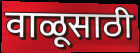
वाळूसाठी